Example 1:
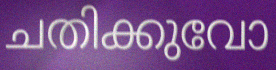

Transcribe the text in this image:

ചതിക്കുവോ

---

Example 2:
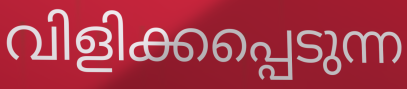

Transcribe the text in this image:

വിളിക്കപ്പെടുന്ന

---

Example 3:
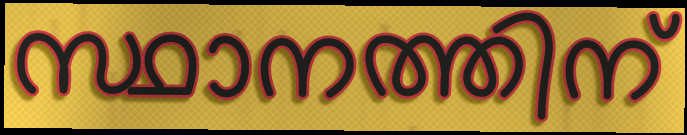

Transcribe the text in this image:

സ്ഥാനത്തിന്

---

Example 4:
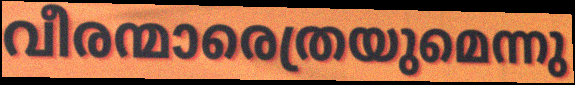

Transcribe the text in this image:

വീരന്മാരെത്രയുമെന്നു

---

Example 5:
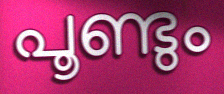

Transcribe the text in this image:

പൂണ്ടും